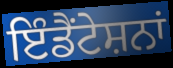
ਇੰਡੈਂਟੇਸ਼ਨਾਂ